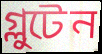
গ্লুটেন